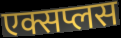
एक्सप्लस